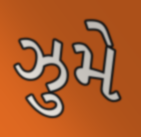
ઝુમે